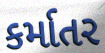
કર્માતર